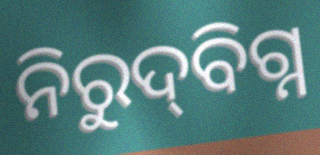
ନିରୁଦ୍‍ବିଗ୍ନ